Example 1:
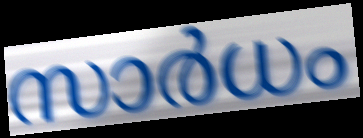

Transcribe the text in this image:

സാർധം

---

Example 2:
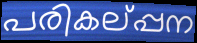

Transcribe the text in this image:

പരികല്പ്പന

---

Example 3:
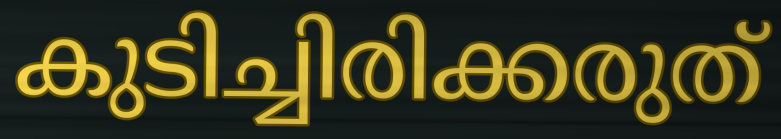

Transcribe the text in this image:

കുടിച്ചിരിക്കരുത്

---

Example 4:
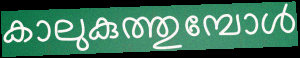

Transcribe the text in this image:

കാലുകുത്തുമ്പോൾ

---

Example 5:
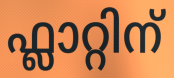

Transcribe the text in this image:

ഫ്ലാറ്റിന്